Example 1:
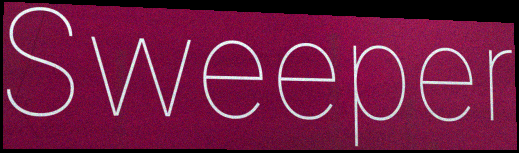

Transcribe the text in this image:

Sweeper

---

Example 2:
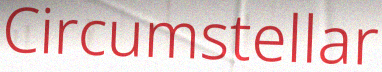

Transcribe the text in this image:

Circumstellar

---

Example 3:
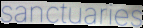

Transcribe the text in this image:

sanctuaries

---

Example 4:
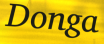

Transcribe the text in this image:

Donga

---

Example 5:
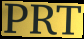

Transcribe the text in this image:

PRT